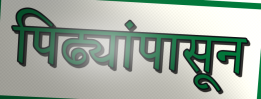
पिढ्यांपासून